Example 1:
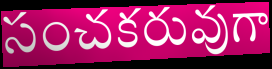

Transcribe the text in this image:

సంచకరువుగా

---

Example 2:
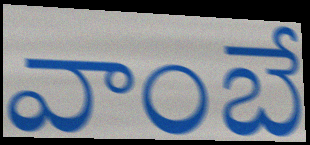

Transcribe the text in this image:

వాంబే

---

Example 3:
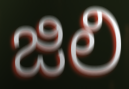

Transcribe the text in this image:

జిలి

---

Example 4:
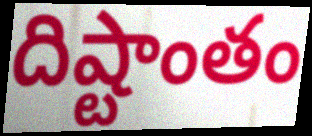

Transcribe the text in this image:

దిష్టాంతం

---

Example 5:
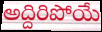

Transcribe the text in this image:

అద్దిరిపోయే